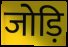
जोड़ि